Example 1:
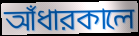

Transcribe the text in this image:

আঁধারকালে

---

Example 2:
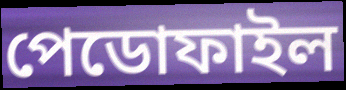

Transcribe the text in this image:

পেডোফাইল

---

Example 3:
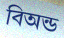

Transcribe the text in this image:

বিঅন্ড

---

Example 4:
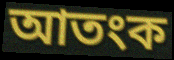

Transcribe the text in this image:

আতংক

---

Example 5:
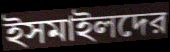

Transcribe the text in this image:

ইসমাইলদের